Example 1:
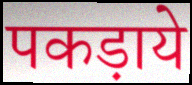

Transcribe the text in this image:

पकड़ाये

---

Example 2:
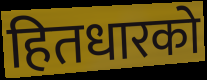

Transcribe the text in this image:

हितधारको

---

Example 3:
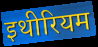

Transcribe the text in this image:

इथीरियम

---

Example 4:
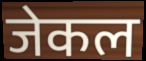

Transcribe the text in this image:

जेकल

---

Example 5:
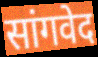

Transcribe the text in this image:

सांगवेद